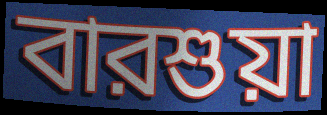
বারশুয়া